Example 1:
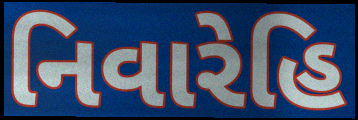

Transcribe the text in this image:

નિવારેહિ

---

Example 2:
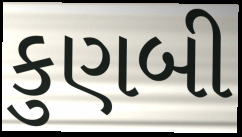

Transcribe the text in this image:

કુણબી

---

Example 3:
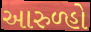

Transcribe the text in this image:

આરુળ્હો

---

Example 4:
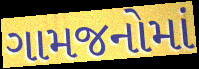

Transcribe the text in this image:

ગામજનોમાં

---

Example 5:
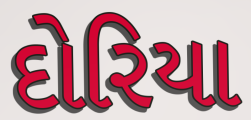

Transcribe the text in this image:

દોરિયા